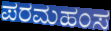
ಪರಮಹಂಸ